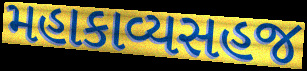
મહાકાવ્યસહજ